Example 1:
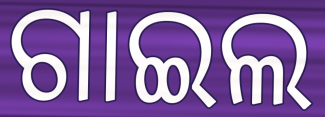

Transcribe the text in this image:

ଗାଇଲ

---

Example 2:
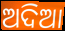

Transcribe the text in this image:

ଅଦିଆ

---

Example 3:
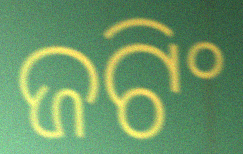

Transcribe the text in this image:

ଜଟିଂ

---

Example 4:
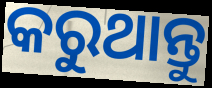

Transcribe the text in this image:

କରୁଥାନ୍ତୁ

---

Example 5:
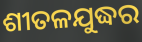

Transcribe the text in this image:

ଶୀତଳଯୁଦ୍ଧର